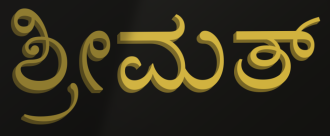
ಶ್ರೀಮತ್